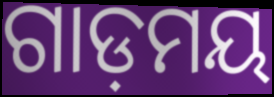
ଗାଡ଼ମୟ